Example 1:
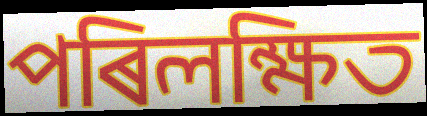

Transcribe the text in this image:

পৰিলক্ষিত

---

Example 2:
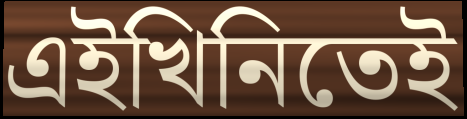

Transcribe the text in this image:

এইখিনিতেই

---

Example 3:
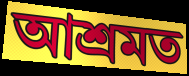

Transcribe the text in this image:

আশ্ৰমত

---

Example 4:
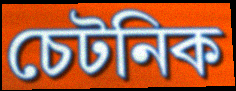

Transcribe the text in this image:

চেটনিক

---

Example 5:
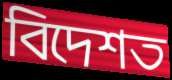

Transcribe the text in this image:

বিদেশত